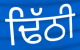
ਢਿੱਠੀ